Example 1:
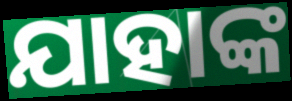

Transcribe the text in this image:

ଯାହାଙ୍କ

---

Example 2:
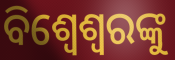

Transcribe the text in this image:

ବିଶ୍ୱେଶ୍ୱରଙ୍କୁ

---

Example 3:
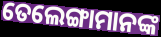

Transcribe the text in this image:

ତେଲେଙ୍ଗାମାନଙ୍କ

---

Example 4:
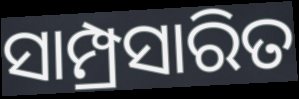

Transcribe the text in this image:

ସାମ୍ପ୍ରସାରିତ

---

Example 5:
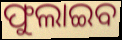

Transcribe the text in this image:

ଫୁଲାଇବ